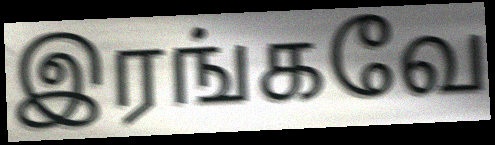
இரங்கவே